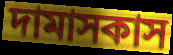
দামাসকাস